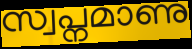
സ്വപ്നമാണു